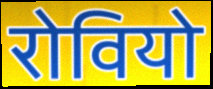
रोवियो